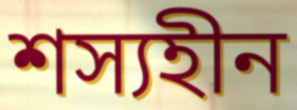
শস্যহীন